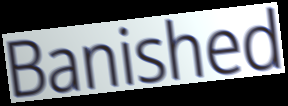
Banished